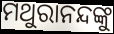
ମଥୁରାନନ୍ଦଙ୍କୁ